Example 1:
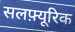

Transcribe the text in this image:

सलफ़्यूरिक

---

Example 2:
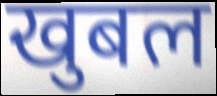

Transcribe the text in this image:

खुबल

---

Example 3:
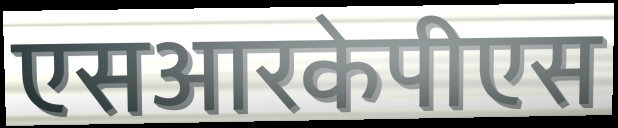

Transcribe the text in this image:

एसआरकेपीएस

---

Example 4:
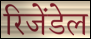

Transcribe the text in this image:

रिजेंडेल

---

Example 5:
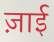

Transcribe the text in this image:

ज़ाई